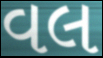
વલ